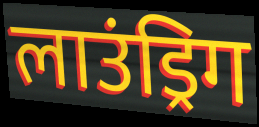
लाउंड्रिग